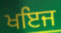
ਖਇਜ